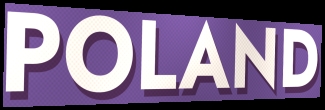
POLAND